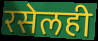
रसेलही